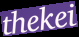
thekei